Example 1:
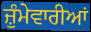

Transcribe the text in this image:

ਜ਼ੁੰਮੇਵਾਰੀਆਂ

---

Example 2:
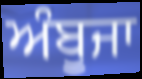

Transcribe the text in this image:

ਅੰਬੂਜਾ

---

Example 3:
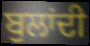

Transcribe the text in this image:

ਬੁਲਾਂਦੀ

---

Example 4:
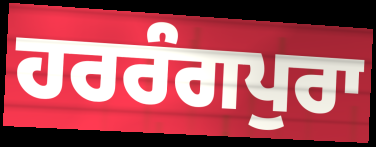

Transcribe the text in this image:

ਹਰਰੰਗਪੁਰਾ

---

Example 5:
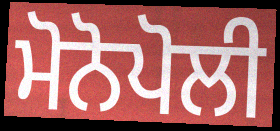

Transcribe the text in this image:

ਮੋਨੋਪੋਲੀ